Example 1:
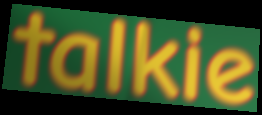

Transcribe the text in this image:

talkie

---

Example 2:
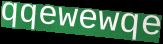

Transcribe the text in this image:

qqewewqe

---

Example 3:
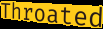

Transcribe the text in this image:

Throated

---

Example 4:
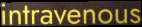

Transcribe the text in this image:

intravenous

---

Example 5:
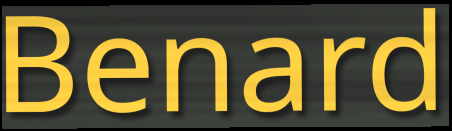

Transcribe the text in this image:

Benard